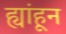
ह्यांहून